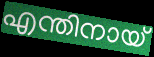
എന്തിനായ്